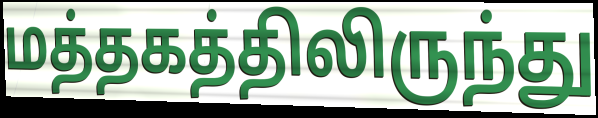
மத்தகத்திலிருந்து